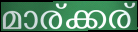
മാര്ക്കര്